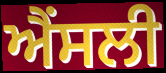
ਐਂਸਲੀ